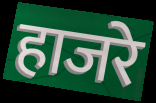
हाजरे